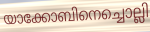
യാക്കോബിനെച്ചൊല്ലി